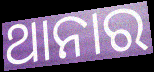
ଥାନାର